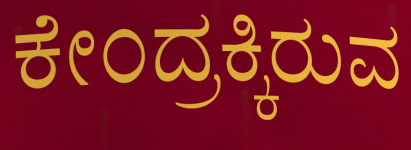
ಕೇಂದ್ರಕ್ಕಿರುವ